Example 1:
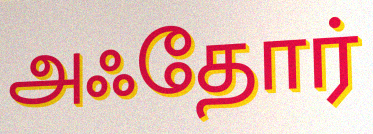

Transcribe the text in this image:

அஃதோர்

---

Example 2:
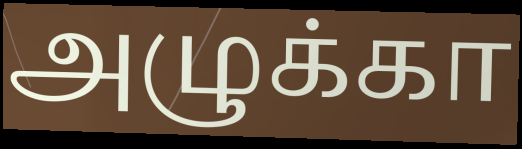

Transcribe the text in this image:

அழுக்கா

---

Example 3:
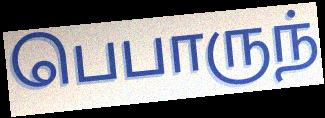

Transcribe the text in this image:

பெபாருந்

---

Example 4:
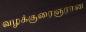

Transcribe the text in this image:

வழக்குரைஞரான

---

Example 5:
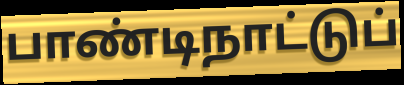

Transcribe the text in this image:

பாண்டிநாட்டுப்